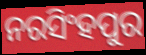
ନରସିଂହପୁର